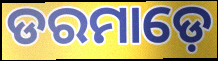
ଡରମାଡ଼େ